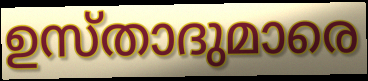
ഉസ്താദുമാരെ